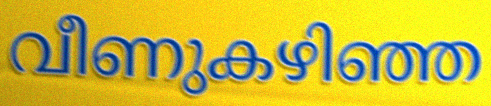
വീണുകഴിഞ്ഞ